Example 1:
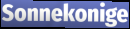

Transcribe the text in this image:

Sonnekonige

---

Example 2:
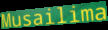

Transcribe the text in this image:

Musailima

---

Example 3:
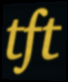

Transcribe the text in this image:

tft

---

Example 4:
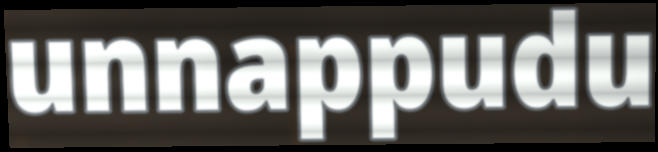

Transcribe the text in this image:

unnappudu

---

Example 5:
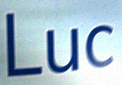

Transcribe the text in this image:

Luc